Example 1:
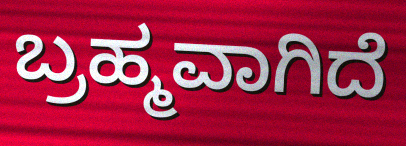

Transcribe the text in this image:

ಬ್ರಹ್ಮವಾಗಿದೆ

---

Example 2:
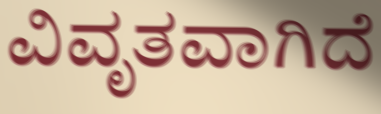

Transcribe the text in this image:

ವಿವೃತವಾಗಿದೆ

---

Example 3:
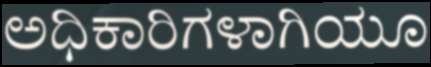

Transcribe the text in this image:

ಅಧಿಕಾರಿಗಳಾಗಿಯೂ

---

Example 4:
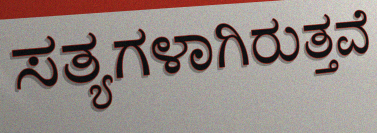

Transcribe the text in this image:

ಸತ್ಯಗಳಾಗಿರುತ್ತವೆ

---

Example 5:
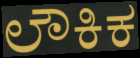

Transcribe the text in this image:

ಲೌಕಿಕ